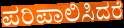
ಪರಿಪಾಲಿಸಿದರೆ